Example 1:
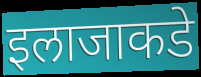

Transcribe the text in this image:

इलाजाकडे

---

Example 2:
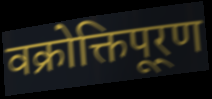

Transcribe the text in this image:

वक्रोक्तिपूर्ण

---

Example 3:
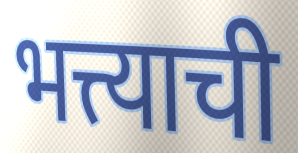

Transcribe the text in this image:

भत्त्याची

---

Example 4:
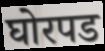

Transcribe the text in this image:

घोरपड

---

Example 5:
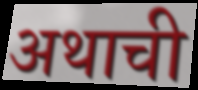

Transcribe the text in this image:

अथाची